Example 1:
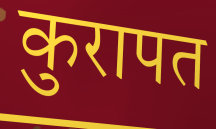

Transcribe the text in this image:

कुरापत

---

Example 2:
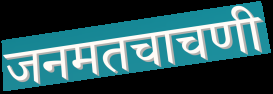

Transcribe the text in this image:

जनमतचाचणी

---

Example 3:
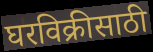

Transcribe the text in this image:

घरविक्रीसाठी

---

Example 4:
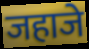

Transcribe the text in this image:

जहाजे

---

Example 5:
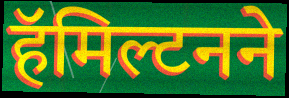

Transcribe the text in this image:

हॅमिल्टनने